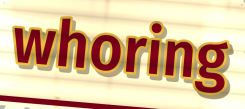
whoring